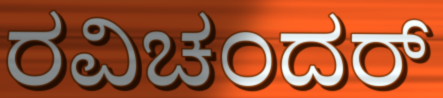
ರವಿಚಂದರ್